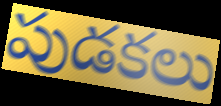
పుడకలు